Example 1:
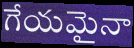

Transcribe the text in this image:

గేయమైనా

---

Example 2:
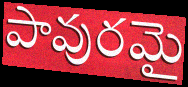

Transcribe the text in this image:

పావురమై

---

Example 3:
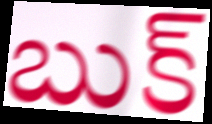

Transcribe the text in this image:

బుక్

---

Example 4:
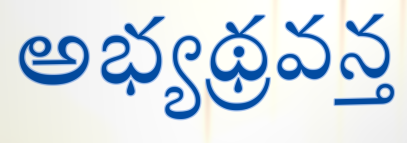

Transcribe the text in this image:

అభ్యథ్రవన్త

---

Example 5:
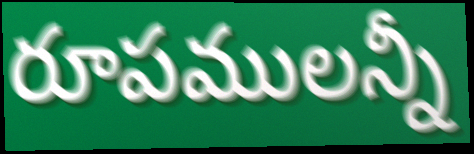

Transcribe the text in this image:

రూపములన్నీ